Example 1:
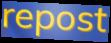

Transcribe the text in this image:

repost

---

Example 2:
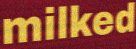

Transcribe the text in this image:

milked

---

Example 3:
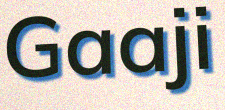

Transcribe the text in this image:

Gaaji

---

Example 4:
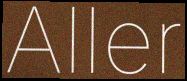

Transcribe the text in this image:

Aller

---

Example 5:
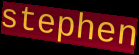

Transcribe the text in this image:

stephen